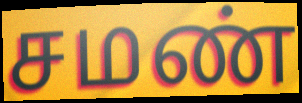
சமண்